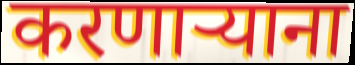
करणाऱ्याना